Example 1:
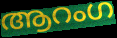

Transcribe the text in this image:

ആറംഗ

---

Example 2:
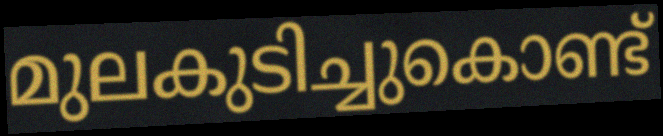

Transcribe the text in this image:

മുലകുടിച്ചുകൊണ്ട്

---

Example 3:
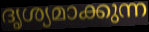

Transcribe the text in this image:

ദൃശ്യമാക്കുന്ന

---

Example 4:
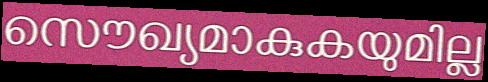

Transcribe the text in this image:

സൌഖ്യമാകുകയുമില്ല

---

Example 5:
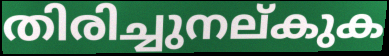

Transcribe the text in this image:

തിരിച്ചുനല്കുക